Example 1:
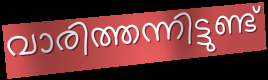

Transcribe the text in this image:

വാരിത്തന്നിട്ടുണ്ട്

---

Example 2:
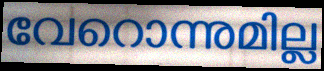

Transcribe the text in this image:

വേറൊന്നുമില്ല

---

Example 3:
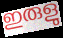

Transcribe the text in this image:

ഇരുളു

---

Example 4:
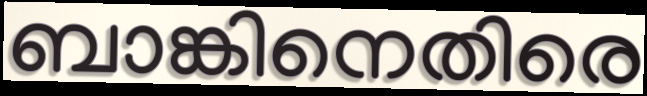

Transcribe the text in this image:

ബാങ്കിനെതിരെ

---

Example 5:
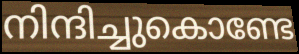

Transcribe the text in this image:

നിന്ദിച്ചുകൊണ്ടേ